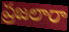
ప్రజలారా